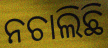
ନଚାଲିଛି